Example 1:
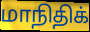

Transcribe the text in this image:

மாநிதிக்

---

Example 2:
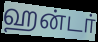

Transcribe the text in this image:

ஹன்டர்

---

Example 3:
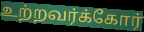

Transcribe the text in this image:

உற்றவர்க்கோர்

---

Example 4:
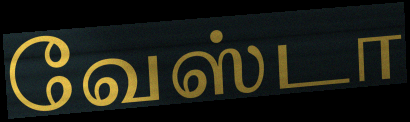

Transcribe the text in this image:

வேஸ்டா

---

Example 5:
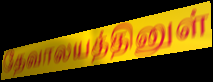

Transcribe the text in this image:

தேவாலயத்தினுள்